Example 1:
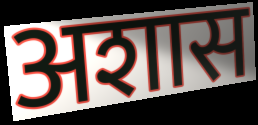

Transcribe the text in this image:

अशास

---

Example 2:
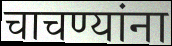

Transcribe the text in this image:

चाचण्यांना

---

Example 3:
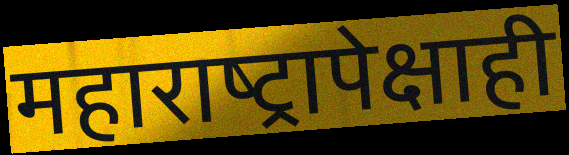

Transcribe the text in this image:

महाराष्ट्रापेक्षाही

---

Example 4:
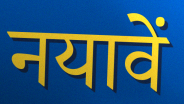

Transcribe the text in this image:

नयावें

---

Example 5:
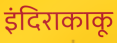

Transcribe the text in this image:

इंदिराकाकू